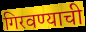
गिरवण्याची